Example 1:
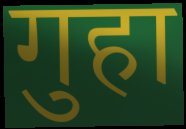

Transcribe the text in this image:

गुहा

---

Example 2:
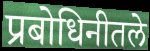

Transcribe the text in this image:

प्रबोधिनीतले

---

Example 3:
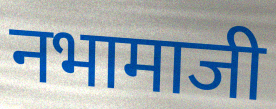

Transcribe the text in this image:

नभामाजी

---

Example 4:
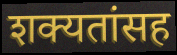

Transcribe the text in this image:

शक्यतांसह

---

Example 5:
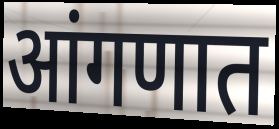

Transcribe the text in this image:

आंगणात